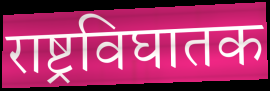
राष्ट्रविघातक